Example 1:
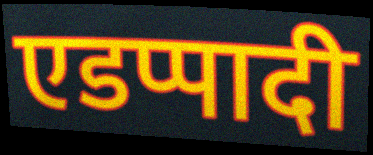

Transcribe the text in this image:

एडप्पादी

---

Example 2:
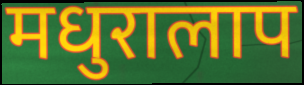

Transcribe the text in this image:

मधुरालाप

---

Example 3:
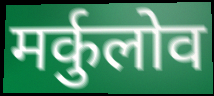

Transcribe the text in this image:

मर्कुलोव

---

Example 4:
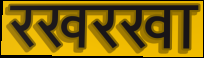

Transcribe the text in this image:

रखरखा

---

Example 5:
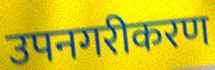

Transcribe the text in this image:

उपनगरीकरण